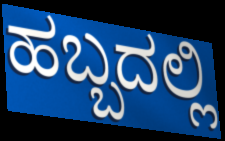
ಹಬ್ಬದಲ್ಲಿ